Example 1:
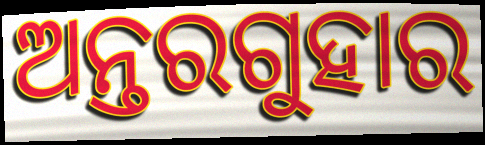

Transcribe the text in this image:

ଅନ୍ତରଗୁହାର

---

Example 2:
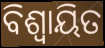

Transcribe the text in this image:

ବିଶ୍ବାୟିତ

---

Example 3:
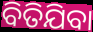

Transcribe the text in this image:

ବିତିଯିବା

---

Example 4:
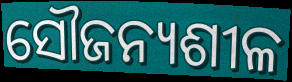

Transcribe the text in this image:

ସୌଜନ୍ୟଶୀଳ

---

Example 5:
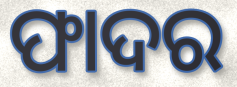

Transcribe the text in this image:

ଫାଦର